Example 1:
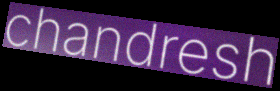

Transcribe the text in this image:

chandresh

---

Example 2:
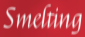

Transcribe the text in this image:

Smelting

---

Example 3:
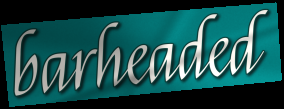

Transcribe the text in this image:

barheaded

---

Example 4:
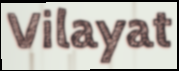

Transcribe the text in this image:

Vilayat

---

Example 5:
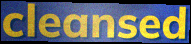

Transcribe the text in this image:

cleansed